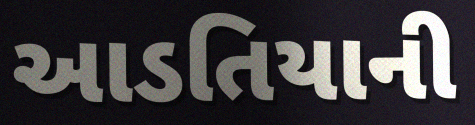
આડતિયાની